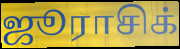
ஜூராசிக்